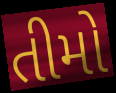
તીમો